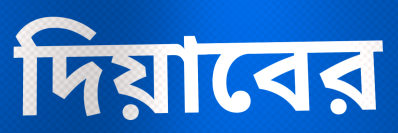
দিয়াবের